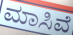
ಮಾಸಿವೆ